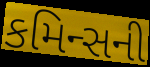
કમિન્સની